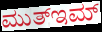
ಮುತ್ಇಮ್